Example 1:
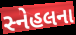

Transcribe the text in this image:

સ્નેહલના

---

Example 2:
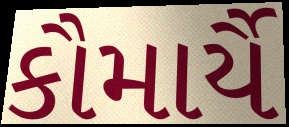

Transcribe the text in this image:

કૌમાર્યૈ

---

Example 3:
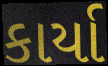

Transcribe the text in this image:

કાર્યા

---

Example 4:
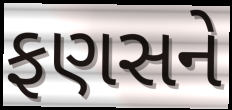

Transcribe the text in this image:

ફણસને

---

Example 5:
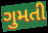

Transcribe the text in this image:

ગુમતી